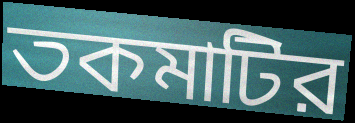
তকমাটির